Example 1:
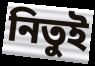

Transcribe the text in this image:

নিতুই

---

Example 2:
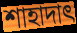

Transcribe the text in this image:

শাহাদাৎ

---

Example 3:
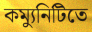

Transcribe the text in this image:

কম্যুনিটিতে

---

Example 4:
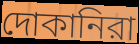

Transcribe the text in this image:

দোকানিরা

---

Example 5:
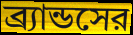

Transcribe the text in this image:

ব্র্যান্ডসের